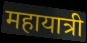
महायात्री